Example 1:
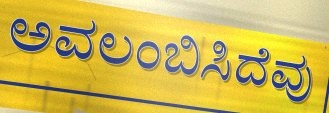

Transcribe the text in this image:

ಅವಲಂಬಿಸಿದೆವು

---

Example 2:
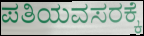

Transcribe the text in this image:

ಪತಿಯವಸರಕ್ಕೆ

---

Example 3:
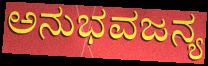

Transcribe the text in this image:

ಅನುಭವಜನ್ಯ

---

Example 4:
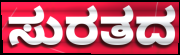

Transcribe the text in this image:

ಸುರತದ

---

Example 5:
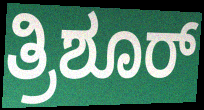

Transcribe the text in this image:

ತ್ರಿಶೂರ್